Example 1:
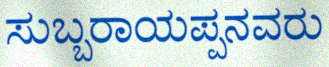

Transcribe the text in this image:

ಸುಬ್ಬರಾಯಪ್ಪನವರು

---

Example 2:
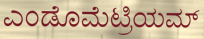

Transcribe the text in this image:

ಎಂಡೊಮೆಟ್ರಿಯಮ್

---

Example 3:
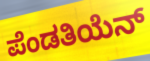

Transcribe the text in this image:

ಪೆಂಡತಿಯೆನ್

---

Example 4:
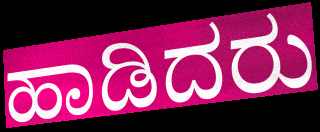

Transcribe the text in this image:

ಹಾಡಿದರು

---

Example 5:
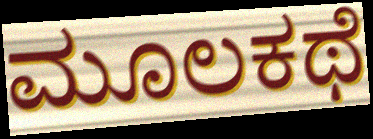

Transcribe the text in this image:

ಮೂಲಕಥೆ